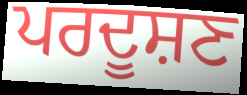
ਪਰਦੂਸ਼ਣ